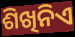
ଶିଖିନିଏ